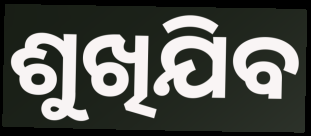
ଶୁଖିଯିବ